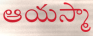
ఆయస్మా